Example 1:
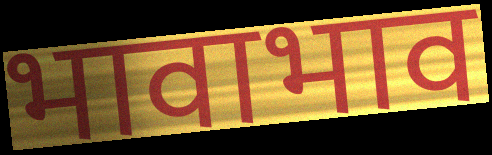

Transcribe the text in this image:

भावाभाव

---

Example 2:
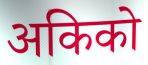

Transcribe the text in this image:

अकिको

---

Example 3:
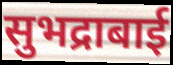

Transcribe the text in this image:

सुभद्राबाई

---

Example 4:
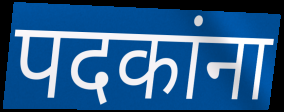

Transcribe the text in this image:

पदकांना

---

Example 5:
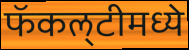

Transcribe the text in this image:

फॅकल्टीमध्ये